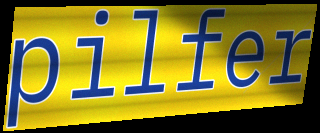
pilfer